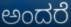
ಅಂದರೆ